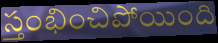
స్తంభించిపోయింది